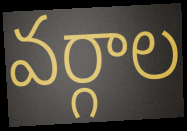
వర్గాల